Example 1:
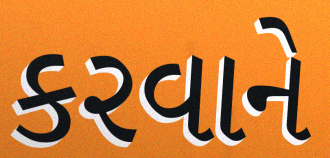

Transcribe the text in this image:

કરવાને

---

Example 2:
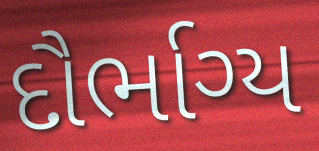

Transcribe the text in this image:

દૌર્ભાગ્ય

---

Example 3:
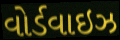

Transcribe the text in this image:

વોર્ડવાઇઝ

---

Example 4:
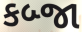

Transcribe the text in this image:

કબ્જા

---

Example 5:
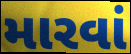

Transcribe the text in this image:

મારવાં